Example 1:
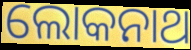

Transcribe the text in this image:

ଲୋକନାଥ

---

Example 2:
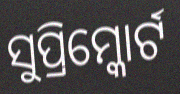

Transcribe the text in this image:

ସୁପ୍ରିମ୍କୋର୍ଟ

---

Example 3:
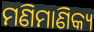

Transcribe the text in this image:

ମଣିମାଣିକ୍ୟ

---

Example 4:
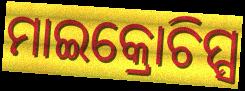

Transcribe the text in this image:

ମାଇକ୍ରୋଚିପ୍ସ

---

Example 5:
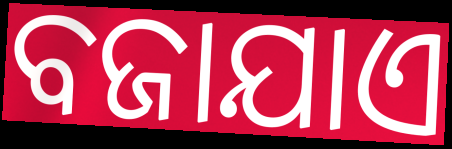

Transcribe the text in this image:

ବଜାଯାଏ